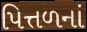
પિત્તળનાં